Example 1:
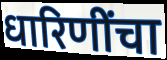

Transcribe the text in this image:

धारिणींचा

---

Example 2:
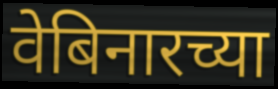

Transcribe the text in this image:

वेबिनारच्या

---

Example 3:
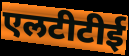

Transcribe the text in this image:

एलटीटीई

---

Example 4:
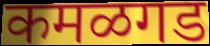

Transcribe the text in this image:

कमळगड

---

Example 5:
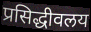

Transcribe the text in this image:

प्रसिद्धीवलय